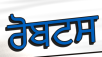
ਰੋਬਟਸ